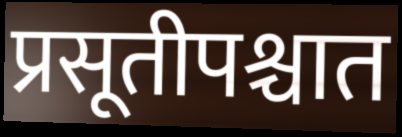
प्रसूतीपश्चात